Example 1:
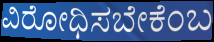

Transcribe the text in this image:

ವಿರೋಧಿಸಬೇಕೆಂಬ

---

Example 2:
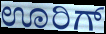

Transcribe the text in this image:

ಊರಿಗ್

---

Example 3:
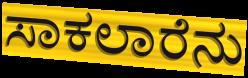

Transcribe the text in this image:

ಸಾಕಲಾರೆನು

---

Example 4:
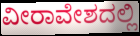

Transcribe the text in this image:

ವೀರಾವೇಶದಲ್ಲಿ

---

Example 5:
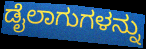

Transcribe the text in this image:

ಡೈಲಾಗುಗಳನ್ನು